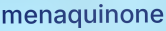
menaquinone